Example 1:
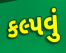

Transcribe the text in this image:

કલ્પવું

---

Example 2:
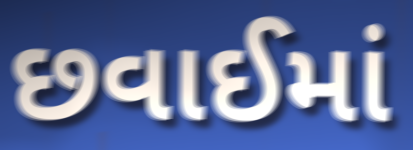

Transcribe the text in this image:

છવાઈમાં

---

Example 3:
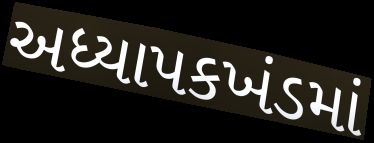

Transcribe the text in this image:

અધ્યાપકખંડમાં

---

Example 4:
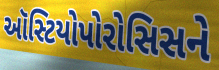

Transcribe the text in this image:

ઑસ્ટિયોપોરોસિસને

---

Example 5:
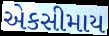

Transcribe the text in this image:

એકસીમાય